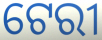
ଟେରୀ